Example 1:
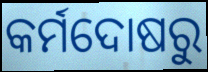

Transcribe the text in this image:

କର୍ମଦୋଷରୁ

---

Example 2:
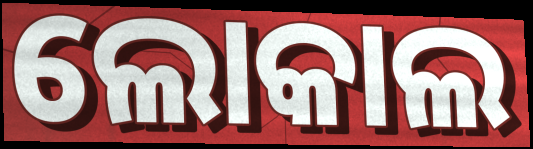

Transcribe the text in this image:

ଲୋକାଲ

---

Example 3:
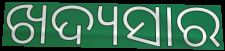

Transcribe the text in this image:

ଖଦ୍ୟସାର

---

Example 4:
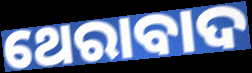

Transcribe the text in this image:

ଥେରାବାଦ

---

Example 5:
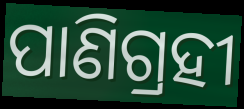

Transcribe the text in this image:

ପାଣିଗ୍ରହୀ